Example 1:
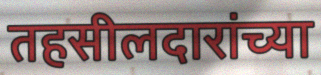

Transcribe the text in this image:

तहसीलदारांच्या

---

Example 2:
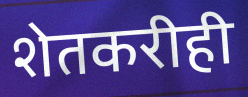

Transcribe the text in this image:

शेतकरीही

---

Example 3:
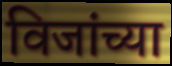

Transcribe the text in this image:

विजांच्या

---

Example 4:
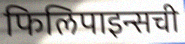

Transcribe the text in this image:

फिलिपाइन्सची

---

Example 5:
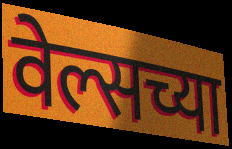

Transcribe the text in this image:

वेल्सच्या